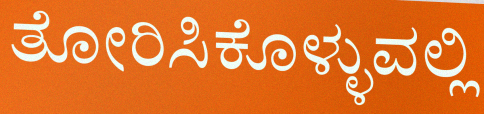
ತೋರಿಸಿಕೊಳ್ಳುವಲ್ಲಿ